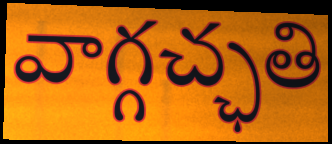
వాగ్గచ్ఛతి